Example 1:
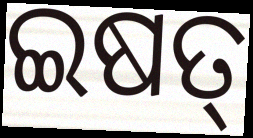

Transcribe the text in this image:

ଇଷତ୍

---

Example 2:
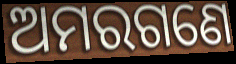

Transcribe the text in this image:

ଅମରଗଣେ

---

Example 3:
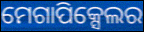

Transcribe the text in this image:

ମେଗାପିକ୍ସେଲର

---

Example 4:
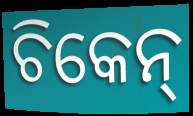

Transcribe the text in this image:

ଚିକେନ୍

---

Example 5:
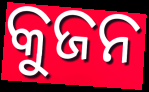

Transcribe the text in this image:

କୁଜନ